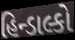
હિન્ડાલ્કો